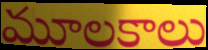
మూలకాలు